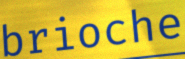
brioche